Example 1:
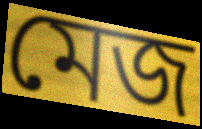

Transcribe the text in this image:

মেজ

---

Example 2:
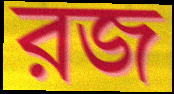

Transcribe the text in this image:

রজ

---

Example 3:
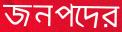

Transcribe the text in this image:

জনপদের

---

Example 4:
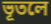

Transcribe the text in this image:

ভূতলে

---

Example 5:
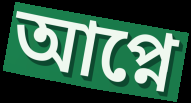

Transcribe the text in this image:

আপ্নে